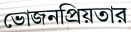
ভোজনপ্রিয়তার